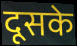
दूसके